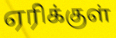
ஏரிக்குள்